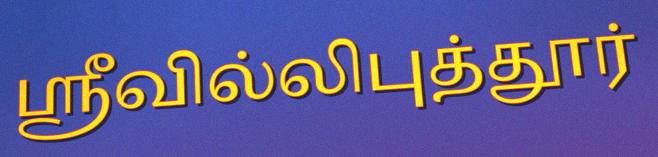
ஸ்ரீவில்லிபுத்தூர்